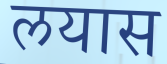
लयास